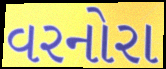
વરનોરા